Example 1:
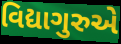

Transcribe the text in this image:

વિદ્યાગુરુએ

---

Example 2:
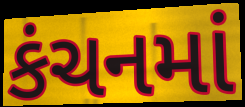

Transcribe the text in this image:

કંચનમાં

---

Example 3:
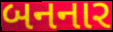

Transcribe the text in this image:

બનનાર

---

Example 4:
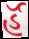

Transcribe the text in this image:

ર્હૅ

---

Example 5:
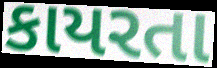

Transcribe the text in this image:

કાયરતા